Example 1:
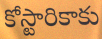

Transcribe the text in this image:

కోస్టారికాకు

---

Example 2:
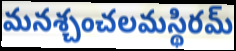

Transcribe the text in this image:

మనశ్చంచలమస్థిరమ్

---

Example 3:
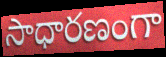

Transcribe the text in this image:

సాధారణంగా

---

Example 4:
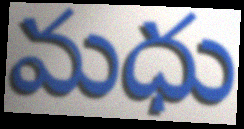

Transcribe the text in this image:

మధు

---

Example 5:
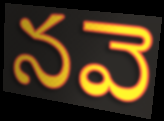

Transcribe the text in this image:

నవె